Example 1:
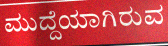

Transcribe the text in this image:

ಮುದ್ದೆಯಾಗಿರುವ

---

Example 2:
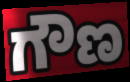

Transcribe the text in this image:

ಗೌಣ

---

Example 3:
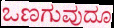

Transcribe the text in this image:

ಒಣಗುವುದೂ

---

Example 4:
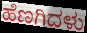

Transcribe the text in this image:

ಹೆಣಗಿದಳು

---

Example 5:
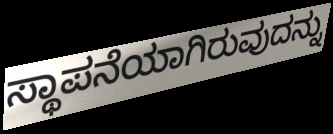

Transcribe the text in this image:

ಸ್ಥಾಪನೆಯಾಗಿರುವುದನ್ನು